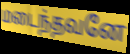
மடைந்தவனே